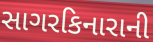
સાગરકિનારાની